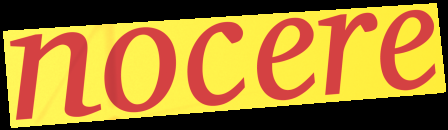
nocere